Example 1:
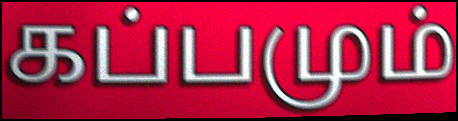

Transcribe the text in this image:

கப்பமும்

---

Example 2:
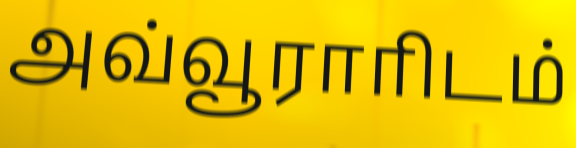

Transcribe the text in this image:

அவ்வூராரிடம்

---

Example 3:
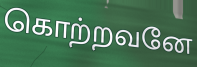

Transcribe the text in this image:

கொற்றவனே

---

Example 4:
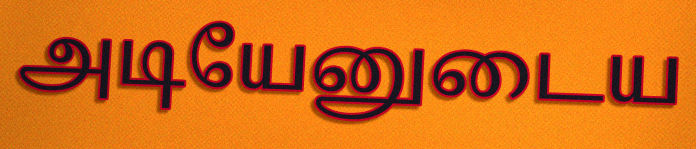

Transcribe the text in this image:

அடியேனுடைய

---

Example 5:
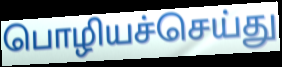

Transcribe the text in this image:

பொழியச்செய்து